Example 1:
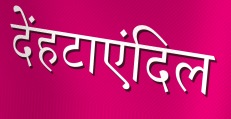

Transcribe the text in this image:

देंहटाएंदिल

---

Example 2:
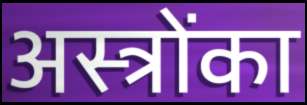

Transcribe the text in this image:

अस्त्रोंका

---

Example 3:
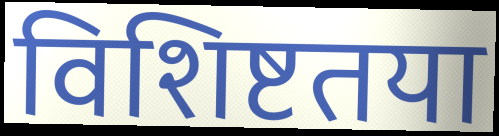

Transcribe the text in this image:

विशिष्टतया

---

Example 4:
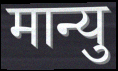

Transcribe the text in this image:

मान्यु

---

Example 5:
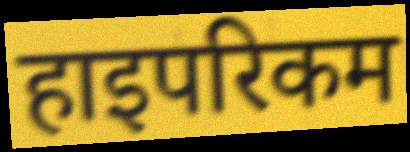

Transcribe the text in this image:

हाइपरिकम